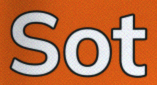
Sot